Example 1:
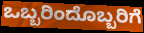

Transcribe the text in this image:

ಒಬ್ಬರಿಂದೊಬ್ಬರಿಗೆ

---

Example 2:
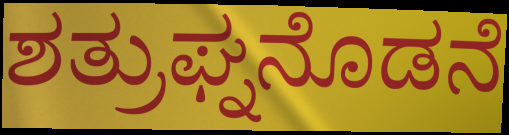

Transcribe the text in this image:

ಶತ್ರುಘ್ನನೊಡನೆ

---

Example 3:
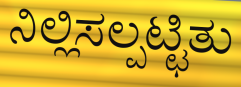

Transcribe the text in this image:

ನಿಲ್ಲಿಸಲ್ಪಟ್ಟಿತು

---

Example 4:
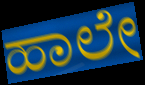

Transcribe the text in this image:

ಹಾಲೇ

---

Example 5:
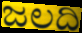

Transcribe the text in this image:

ಜಲದಿ